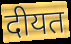
दीयत